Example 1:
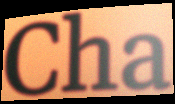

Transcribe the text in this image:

Cha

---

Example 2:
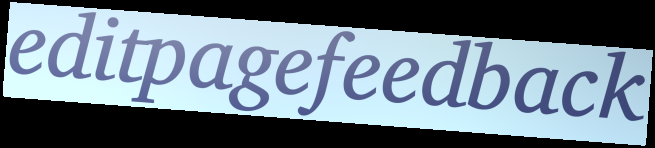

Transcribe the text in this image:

editpagefeedback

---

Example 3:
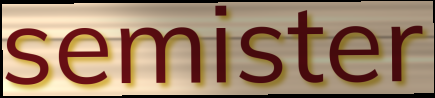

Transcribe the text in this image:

semister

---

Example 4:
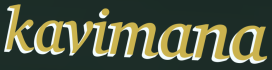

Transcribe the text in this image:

kavimana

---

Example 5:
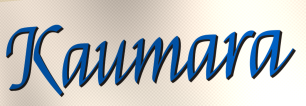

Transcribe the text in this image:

Kaumara